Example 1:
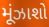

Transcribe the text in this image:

મૂંઝાશો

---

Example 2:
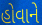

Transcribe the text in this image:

હોવાને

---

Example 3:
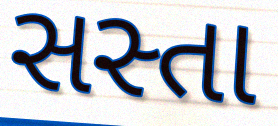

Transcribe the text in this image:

સસ્તા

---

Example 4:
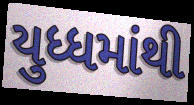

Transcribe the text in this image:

યુધ્ધમાંથી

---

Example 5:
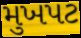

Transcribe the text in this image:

મુખપટ